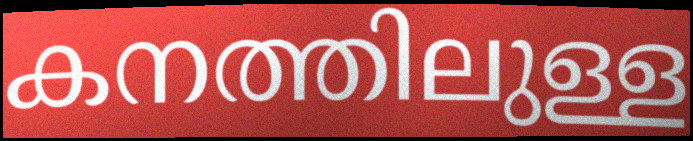
കനത്തിലുള്ള